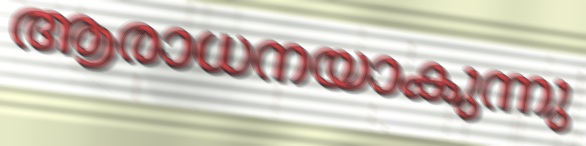
ആരാധനയാകുന്നു